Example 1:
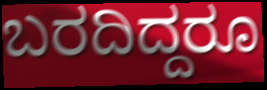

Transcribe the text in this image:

ಬರದಿದ್ದರೂ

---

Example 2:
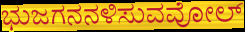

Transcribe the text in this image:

ಭುಜಗನನಳಿಸುವವೋಲ್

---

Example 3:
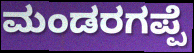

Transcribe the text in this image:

ಮಂಡರಗಪ್ಪೆ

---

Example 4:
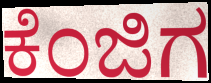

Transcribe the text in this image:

ಕೆಂಜಿಗ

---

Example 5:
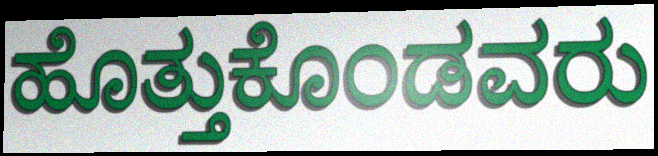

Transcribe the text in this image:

ಹೊತ್ತುಕೊಂಡವರು